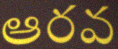
ఆరవ